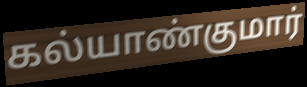
கல்யாண்குமார்